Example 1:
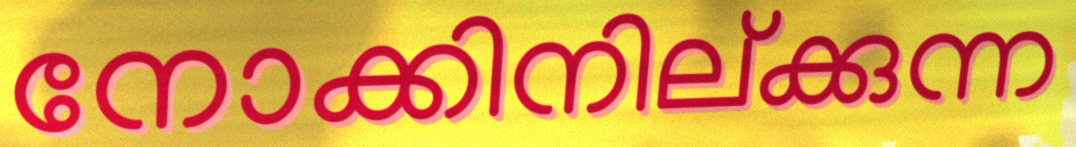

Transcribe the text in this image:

നോക്കിനില്ക്കുന്ന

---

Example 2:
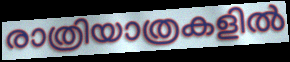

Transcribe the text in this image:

രാത്രിയാത്രകളിൽ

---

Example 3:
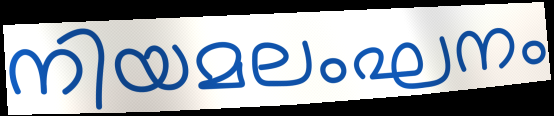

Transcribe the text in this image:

നിയമലംഘനം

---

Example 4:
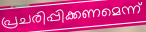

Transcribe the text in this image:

പ്രചരിപ്പിക്കണമെന്ന്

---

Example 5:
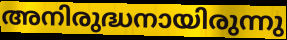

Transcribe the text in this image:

അനിരുദ്ധനായിരുന്നു